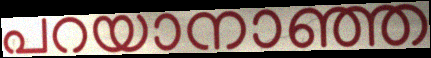
പറയാനാഞ്ഞ